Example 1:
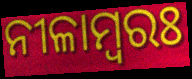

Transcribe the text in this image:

ନୀଳାମ୍ବରଃ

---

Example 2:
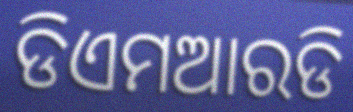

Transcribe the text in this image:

ଡିଏମଆରଡି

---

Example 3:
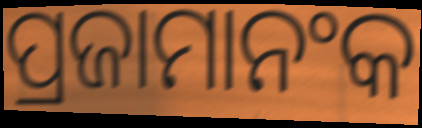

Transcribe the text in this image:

ପ୍ରଜାମାନଂକ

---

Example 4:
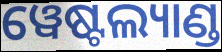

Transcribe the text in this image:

ୱେଷ୍ଟଲ୍ୟାଣ୍ଡ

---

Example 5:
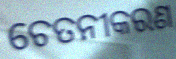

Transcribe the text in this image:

ଚେତନୀକରଣ